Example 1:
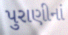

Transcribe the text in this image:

પુરાણીનાં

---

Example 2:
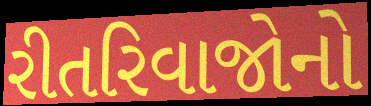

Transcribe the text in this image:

રીતરિવાજોનો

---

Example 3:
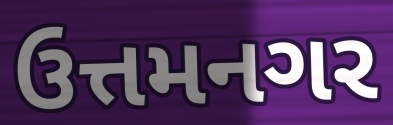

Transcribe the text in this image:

ઉત્તમનગર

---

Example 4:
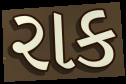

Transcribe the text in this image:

રાક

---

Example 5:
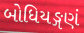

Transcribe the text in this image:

બોધિયઙ્ગણં